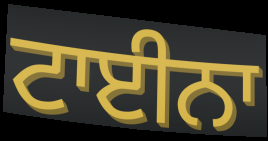
ਟਾਈਨਾ